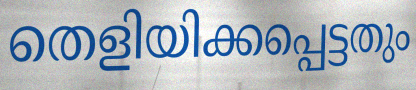
തെളിയിക്കപ്പെട്ടതും